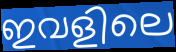
ഇവളിലെ